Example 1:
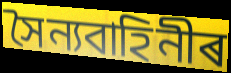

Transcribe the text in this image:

সৈন্যবাহিনীৰ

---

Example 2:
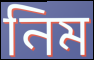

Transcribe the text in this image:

নিম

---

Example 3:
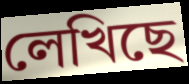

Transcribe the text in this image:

লেখিছে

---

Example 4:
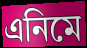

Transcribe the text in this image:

এনিমে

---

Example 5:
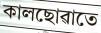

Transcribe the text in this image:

কালছোৱাতে